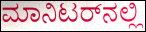
ಮಾನಿಟರ್‌ನಲ್ಲಿ